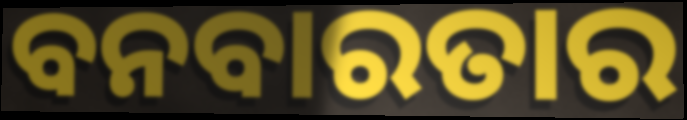
ବନବାରତାର